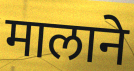
मालाने